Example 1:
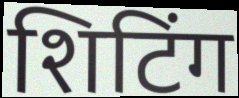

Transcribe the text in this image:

शिटिंग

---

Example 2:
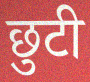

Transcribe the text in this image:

छुटी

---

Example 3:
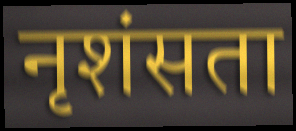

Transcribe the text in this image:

नृशंसता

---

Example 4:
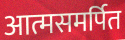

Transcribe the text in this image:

आत्मसमर्पित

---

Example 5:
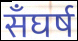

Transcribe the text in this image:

सँघर्ष